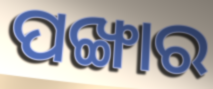
ପଙ୍ଖାର